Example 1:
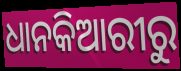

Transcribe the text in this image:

ଧାନକିଆରୀରୁ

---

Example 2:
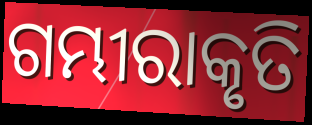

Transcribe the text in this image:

ଗମ୍ଭୀରାକୃତି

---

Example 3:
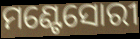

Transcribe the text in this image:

ମଣ୍ଟେସୋରୀ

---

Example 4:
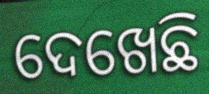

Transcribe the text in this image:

ଦେଖେଛି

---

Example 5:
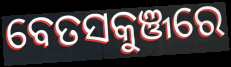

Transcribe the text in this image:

ବେତସକୁଞ୍ଜରେ